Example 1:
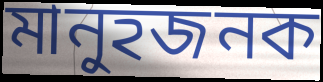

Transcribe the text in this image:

মানুহজনক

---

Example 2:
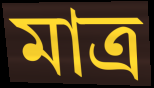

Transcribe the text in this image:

মাত্ৰ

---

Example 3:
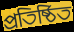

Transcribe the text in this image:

প্ৰতিষ্ঠিত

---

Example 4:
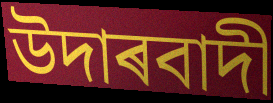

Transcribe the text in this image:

উদাৰবাদী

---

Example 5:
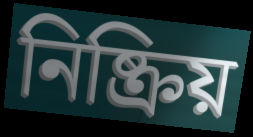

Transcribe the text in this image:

নিষ্ক্ৰিয়